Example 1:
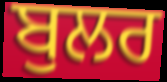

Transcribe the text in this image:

ਬੁਲਰ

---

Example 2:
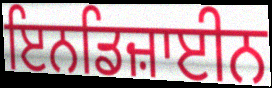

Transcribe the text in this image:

ਇਨਡਿਜ਼ਾਈਨ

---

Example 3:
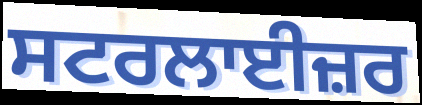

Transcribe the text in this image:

ਸਟਰਲਾਈਜ਼ਰ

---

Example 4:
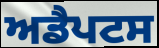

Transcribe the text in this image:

ਅਡੈਪਟਸ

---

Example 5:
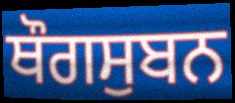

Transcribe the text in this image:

ਥੌਗਸੁਬਨ